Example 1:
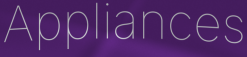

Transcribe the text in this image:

Appliances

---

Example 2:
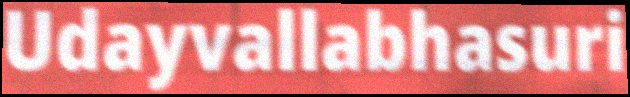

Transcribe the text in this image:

Udayvallabhasuri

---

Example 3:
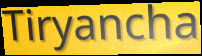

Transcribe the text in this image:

Tiryancha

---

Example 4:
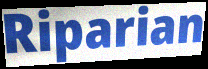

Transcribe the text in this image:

Riparian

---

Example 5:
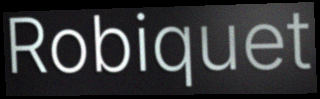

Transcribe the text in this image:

Robiquet